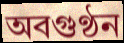
অবগুণ্ঠন